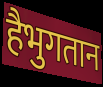
हैभुगतान